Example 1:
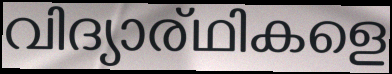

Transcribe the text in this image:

വിദ്യാര്ഥികളെ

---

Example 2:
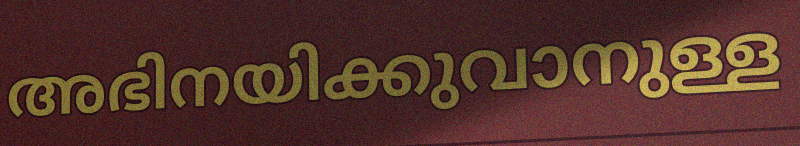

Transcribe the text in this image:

അഭിനയിക്കുവാനുള്ള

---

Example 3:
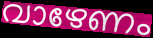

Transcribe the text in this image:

വാഴേണം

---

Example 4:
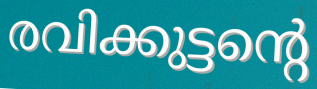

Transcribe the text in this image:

രവിക്കുട്ടന്റെ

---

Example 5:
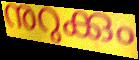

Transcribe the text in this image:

നുറുക്കും